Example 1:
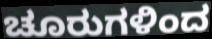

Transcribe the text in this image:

ಚೂರುಗಳಿಂದ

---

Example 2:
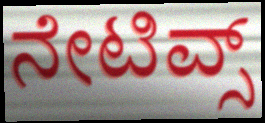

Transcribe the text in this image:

ನೇಟಿವ್ಸ್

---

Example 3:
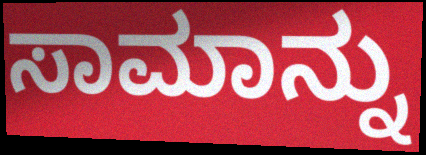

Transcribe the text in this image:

ಸಾಮಾನ್ನು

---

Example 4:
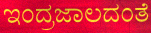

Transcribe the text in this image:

ಇಂದ್ರಜಾಲದಂತೆ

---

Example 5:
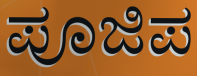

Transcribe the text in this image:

ಪೂಜಿಪ